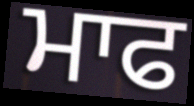
ਮਾਫ